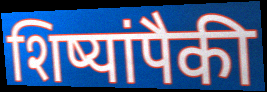
शिष्यांपैकी